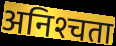
अनिश्चता